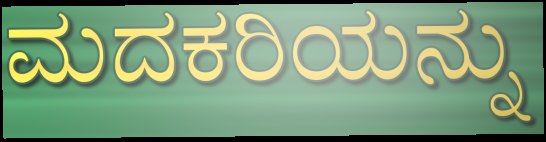
ಮದಕರಿಯನ್ನು